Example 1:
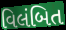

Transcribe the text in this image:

વિલંબિત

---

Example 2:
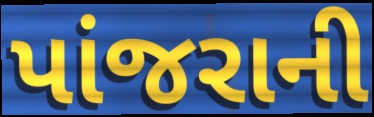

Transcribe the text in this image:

પાંજરાની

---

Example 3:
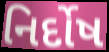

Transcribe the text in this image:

નિર્દોષ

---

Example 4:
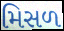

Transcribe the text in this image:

મિસળ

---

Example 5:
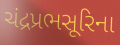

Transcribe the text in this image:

ચંદ્રપ્રભસૂરિના